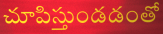
చూపిస్తుండడంతో